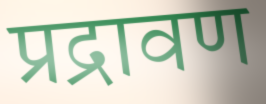
प्रद्रावण